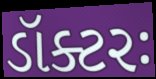
ડૉક્ટરઃ